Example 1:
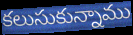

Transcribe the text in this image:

కలుసుకున్నాము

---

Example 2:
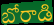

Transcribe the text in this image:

బోరాడి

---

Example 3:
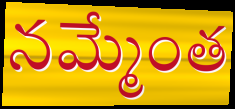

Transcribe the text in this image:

నమ్మేంత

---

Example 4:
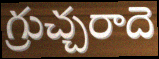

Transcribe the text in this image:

గ్రుచ్చరాదె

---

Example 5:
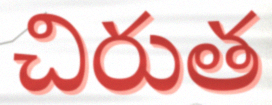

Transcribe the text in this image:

చిరుత